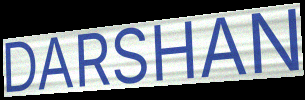
DARSHAN